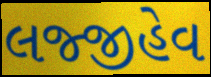
લજ્જીહેવ